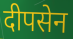
दीपसेन